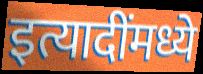
इत्यादींमध्ये